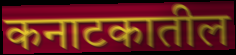
कनाटकातील